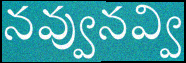
నవ్వునవ్వి